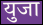
युजा